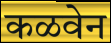
कळवेन